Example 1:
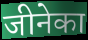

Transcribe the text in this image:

जीनेका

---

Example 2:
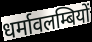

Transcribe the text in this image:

धर्मावलम्बियों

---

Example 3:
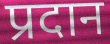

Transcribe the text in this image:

प्रदान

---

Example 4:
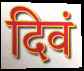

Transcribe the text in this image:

दिवं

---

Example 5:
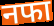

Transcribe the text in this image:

नफा